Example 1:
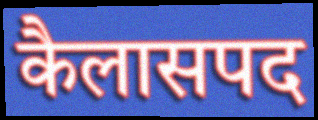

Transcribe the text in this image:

कैलासपद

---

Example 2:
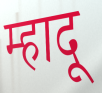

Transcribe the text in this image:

म्हादू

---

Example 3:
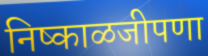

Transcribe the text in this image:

निष्काळजीपणा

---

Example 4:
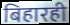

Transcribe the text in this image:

बिहारही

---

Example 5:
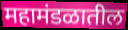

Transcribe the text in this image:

महामंडळातील